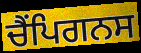
ਚੈਂਪਿਗਨਸ